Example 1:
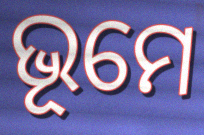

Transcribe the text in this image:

ଭୂମେ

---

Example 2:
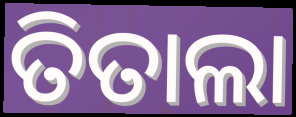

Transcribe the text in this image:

ତିତାଲା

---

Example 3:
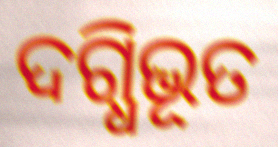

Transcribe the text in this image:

ଦଗ୍ଧିଭୂତ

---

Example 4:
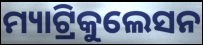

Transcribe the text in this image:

ମ୍ୟାଟ୍ରିକୁଲେସନ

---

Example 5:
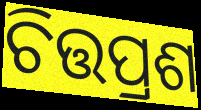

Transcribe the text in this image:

ଚିତ୍ତପ୍ରଶ